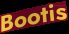
Bootis